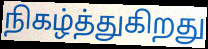
நிகழ்த்துகிறது